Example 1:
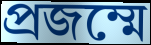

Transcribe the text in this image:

প্রজম্মে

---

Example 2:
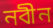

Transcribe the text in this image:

নবীন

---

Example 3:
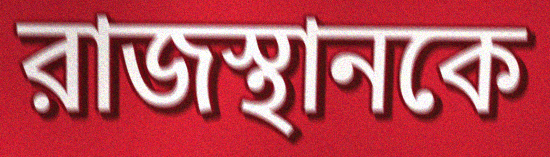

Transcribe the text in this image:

রাজস্থানকে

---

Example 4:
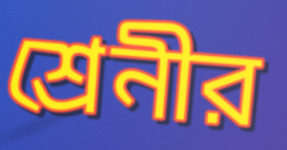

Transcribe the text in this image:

শ্রেনীর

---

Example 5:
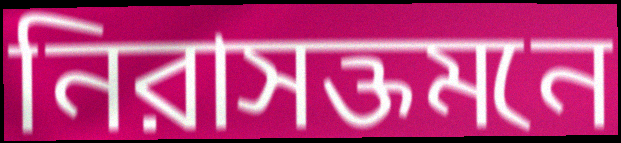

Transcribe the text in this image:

নিরাসক্তমনে